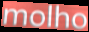
molho